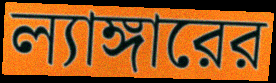
ল্যাঙ্গারের